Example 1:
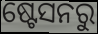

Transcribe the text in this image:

ଷ୍ଟେସନରୁ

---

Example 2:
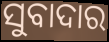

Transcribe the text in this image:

ସୁବାଦାର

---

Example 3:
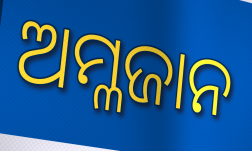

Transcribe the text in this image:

ଅମ୍ଳଜାନ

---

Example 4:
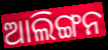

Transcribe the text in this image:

ଆଲିଙ୍ଗନ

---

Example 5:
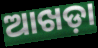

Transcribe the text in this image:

ଆଖଡ଼ା